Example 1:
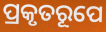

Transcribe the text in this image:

ପ୍ରକୃତରୂପେ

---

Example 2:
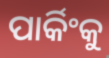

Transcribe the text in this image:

ପାର୍କିଂକୁ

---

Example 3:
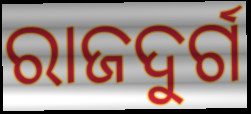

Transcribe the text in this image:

ରାଜଦୁର୍ଗ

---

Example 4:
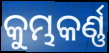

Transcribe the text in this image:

କୁମ୍ଭକର୍ଣ୍ଣ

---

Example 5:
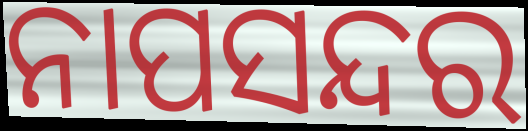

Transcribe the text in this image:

ନାପସନ୍ଦର